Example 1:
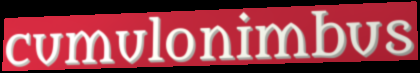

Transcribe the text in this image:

cumulonimbus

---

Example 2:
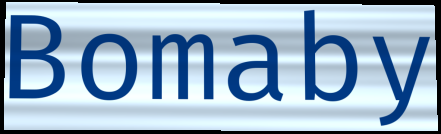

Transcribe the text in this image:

Bomaby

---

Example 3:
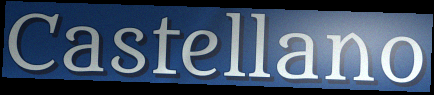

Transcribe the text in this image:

Castellano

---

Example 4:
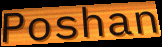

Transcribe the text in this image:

Poshan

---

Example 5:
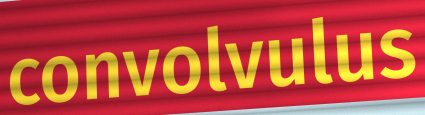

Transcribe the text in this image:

convolvulus